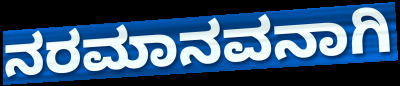
ನರಮಾನವನಾಗಿ